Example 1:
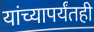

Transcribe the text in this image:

यांच्यापर्यंतही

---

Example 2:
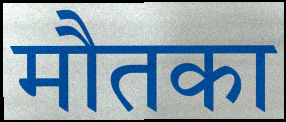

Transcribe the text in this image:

मौतका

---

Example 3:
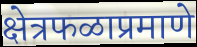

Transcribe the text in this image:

क्षेत्रफळाप्रमाणे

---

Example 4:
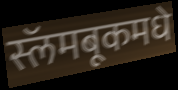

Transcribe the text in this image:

स्लॅमबूकमधे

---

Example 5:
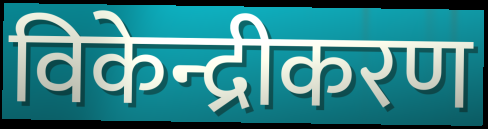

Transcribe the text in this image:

विकेन्द्रीकरण